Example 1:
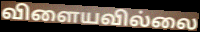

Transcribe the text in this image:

விளையவில்லை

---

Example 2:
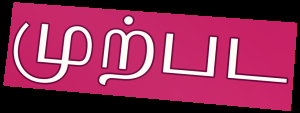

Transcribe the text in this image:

முற்பட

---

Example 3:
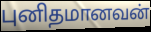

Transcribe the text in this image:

புனிதமானவன்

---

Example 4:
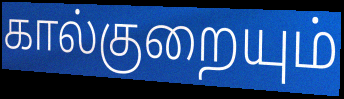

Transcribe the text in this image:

கால்குறையும்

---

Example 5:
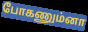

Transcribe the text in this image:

போகணும்னா